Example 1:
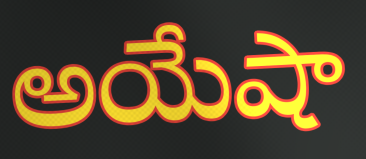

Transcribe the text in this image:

అయేషా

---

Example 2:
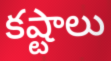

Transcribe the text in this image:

కష్టాలు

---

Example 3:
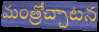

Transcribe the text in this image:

మంత్రోచ్చాటన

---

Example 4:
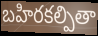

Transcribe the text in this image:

బహిరకల్పితా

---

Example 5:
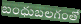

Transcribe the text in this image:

బంధుబలగంతో